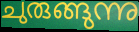
ചുരുങ്ങുന്നു